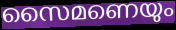
സൈമണെയും